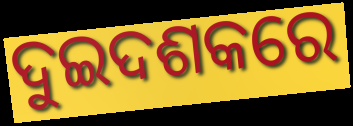
ଦୁଇଦଶକରେ